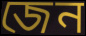
জেন